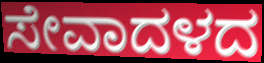
ಸೇವಾದಳದ